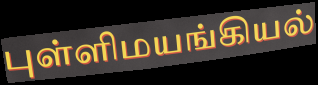
புள்ளிமயங்கியல்